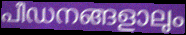
പീഡനങ്ങളാലും